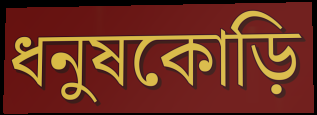
ধনুষকোড়ি